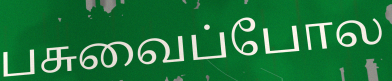
பசுவைப்போல